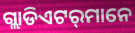
ଗ୍ଲାଡିଏଟର୍‍ମାନେ